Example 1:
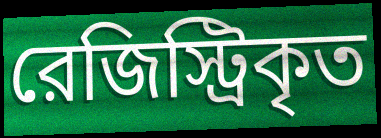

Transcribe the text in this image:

রেজিস্ট্রিকৃত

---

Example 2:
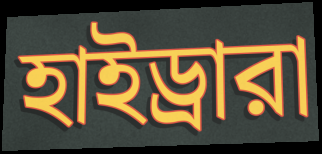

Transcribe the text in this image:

হাইড্রারা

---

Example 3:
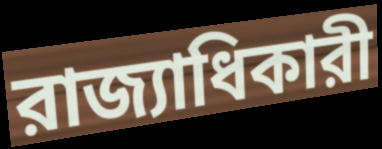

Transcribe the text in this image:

রাজ্যাধিকারী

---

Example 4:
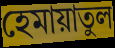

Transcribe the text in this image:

হেমায়াতুল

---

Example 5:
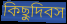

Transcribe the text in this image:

কিছুদিবস